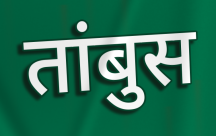
तांबुस